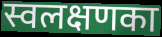
स्वलक्षणका